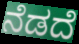
ನೆಡದೆ